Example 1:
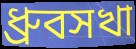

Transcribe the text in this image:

ধ্রুবসখা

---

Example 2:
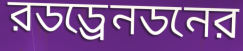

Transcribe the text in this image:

রডড্রেনডনের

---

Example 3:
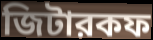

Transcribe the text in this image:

জিটারকফ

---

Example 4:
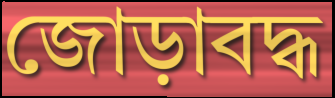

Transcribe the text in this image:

জোড়াবদ্ধ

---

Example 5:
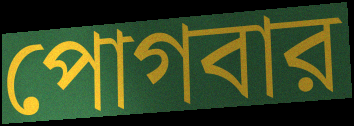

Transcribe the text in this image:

পোগবার